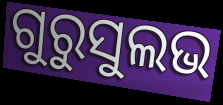
ଗୁରୁସୁଲଭ